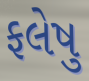
ફલેષુ